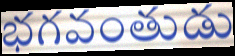
భగవంతుడు